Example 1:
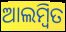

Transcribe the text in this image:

ଆଲମ୍ୱିତ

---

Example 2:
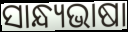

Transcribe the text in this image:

ସାନ୍ଧ୍ୟଭାଷା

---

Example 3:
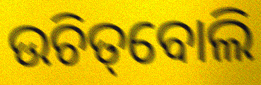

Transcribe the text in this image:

ଉଚିତ୍‌ବୋଲି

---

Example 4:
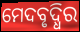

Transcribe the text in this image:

ମେଦବୃଦ୍ଧିର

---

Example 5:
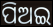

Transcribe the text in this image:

ପିଅଇ